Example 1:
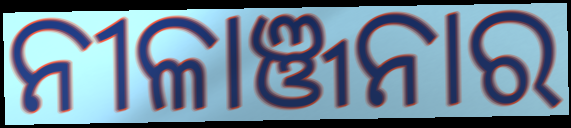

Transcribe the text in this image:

ନୀଳାଞ୍ଜନାର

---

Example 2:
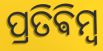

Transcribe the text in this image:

ପ୍ରତିଵିମ୍ବ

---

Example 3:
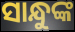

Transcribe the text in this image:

ସାନ୍ଧୁଙ୍କ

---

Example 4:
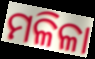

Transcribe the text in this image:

ମଳିଳା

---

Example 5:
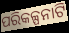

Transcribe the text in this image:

ପରିକଳ୍ପନାଟି